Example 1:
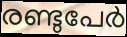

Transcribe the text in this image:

രണ്ടുപേർ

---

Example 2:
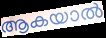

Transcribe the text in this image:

ആകയാൽ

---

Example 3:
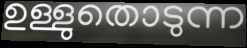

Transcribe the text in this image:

ഉള്ളുതൊടുന്ന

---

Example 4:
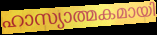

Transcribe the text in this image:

ഹാസ്യാത്മകമായി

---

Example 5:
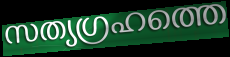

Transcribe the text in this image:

സത്യഗ്രഹത്തെ